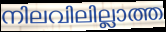
നിലവിലില്ലാത്ത